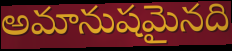
అమానుషమైనది